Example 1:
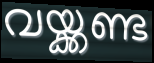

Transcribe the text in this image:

വയ്ക്കണ്ട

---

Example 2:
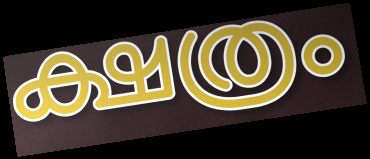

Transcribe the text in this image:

ക്ഷത്രം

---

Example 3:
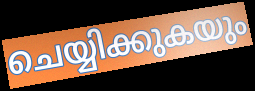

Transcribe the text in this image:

ചെയ്യിക്കുകയും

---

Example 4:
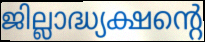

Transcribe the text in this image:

ജില്ലാദ്ധ്യക്ഷന്റെ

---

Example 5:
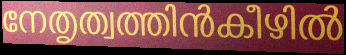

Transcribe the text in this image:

നേതൃത്വത്തിൻകീഴിൽ